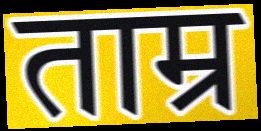
ताम्र